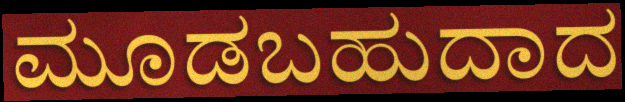
ಮೂಡಬಹುದಾದ